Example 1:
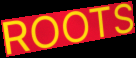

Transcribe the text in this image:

ROOTS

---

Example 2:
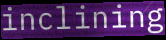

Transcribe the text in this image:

inclining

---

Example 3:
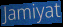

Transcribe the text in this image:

Jamiyat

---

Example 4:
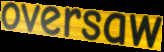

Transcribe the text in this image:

oversaw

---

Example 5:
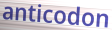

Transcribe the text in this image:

anticodon